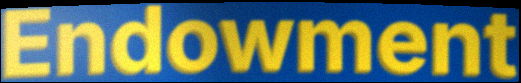
Endowment